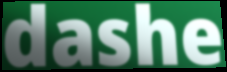
dashe